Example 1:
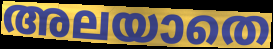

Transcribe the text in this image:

അലയാതെ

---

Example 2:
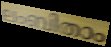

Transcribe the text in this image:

ലംബിതാം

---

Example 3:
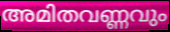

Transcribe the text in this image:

അമിതവണ്ണവും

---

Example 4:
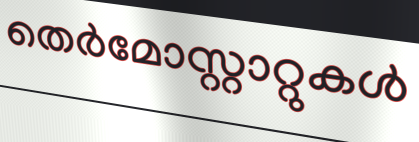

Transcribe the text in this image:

തെർമോസ്റ്റാറ്റുകൾ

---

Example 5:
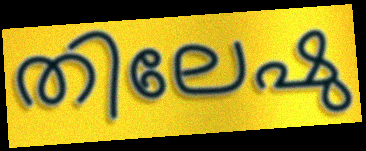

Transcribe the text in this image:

തിലേഷു